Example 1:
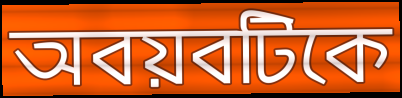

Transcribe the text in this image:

অবয়বটিকে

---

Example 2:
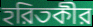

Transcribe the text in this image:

হরিতকীর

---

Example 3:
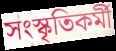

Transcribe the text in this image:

সংস্কৃতিকর্মী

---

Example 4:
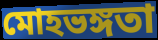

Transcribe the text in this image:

মোহভঙ্গতা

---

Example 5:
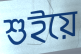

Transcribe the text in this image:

শুইয়ে